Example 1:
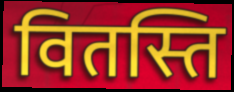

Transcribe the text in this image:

वितस्ति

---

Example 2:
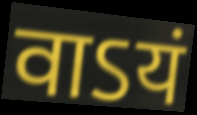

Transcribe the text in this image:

वाऽयं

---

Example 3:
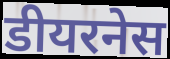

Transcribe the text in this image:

डीयरनेस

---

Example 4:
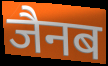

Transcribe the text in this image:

जैनब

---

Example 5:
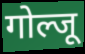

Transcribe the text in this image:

गोल्जू